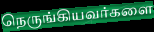
நெருங்கியவர்களை